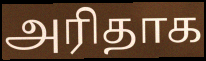
அரிதாக